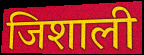
जिशाली